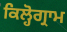
ਕਿਲ੍ਹੋਗ੍ਰਾਮ